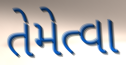
તેમેત્વા